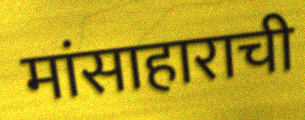
मांसाहाराची